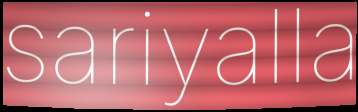
sariyalla